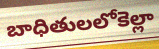
బాధితులలోకెల్లా